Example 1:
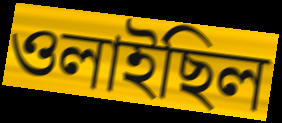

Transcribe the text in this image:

ওলাইছিল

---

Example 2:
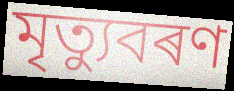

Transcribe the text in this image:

মৃত্যুবৰণ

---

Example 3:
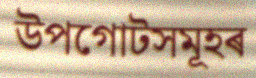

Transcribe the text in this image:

উপগোটসমূহৰ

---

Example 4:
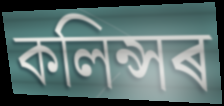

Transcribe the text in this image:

কলিন্সৰ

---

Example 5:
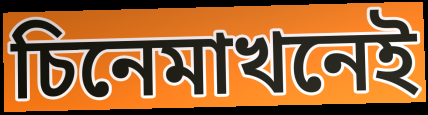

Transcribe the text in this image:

চিনেমাখনেই